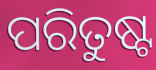
ପରିତୁଷ୍ଟ